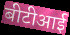
बीटीआई